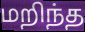
மறிந்த